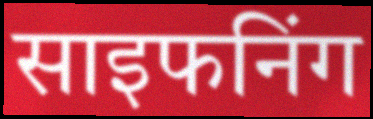
साइफनिंग